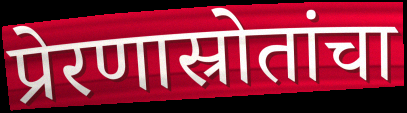
प्रेरणास्रोतांचा